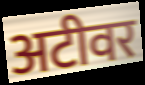
अटीवर